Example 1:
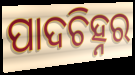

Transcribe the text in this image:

ପାଦଚିହ୍ନର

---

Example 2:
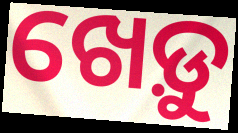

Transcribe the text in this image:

ଖେଡ଼ୁ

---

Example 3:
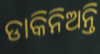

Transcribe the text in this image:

ଡାକିନିଅନ୍ତି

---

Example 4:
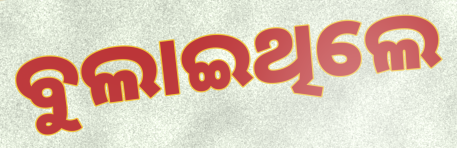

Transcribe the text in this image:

ବୁଲାଇଥିଲେ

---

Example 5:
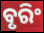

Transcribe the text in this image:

ବୃରିଂ